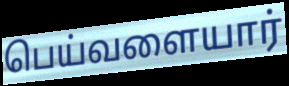
பெய்வளையார்